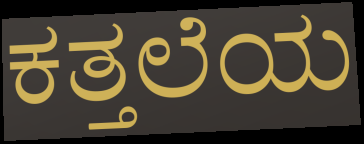
ಕತ್ತಲೆಯ